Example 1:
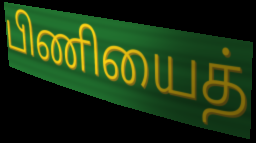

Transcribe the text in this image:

பிணியைத்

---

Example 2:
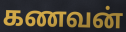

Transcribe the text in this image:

கணவன்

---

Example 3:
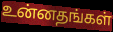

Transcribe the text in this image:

உன்னதங்கள்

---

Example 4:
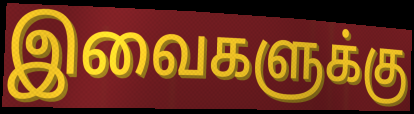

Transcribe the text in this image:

இவைகளுக்கு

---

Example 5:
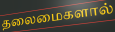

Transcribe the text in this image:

தலைமைகளால்